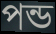
পন্ড